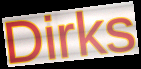
Dirks